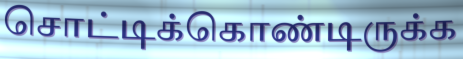
சொட்டிக்கொண்டிருக்க